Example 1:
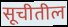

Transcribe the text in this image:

सूचीतील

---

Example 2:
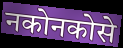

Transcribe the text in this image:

नकोनकोसे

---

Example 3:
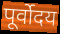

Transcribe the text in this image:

पूर्वोदय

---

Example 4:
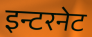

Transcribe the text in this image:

इन्टरनेट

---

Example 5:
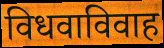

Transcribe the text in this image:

विधवाविवाह